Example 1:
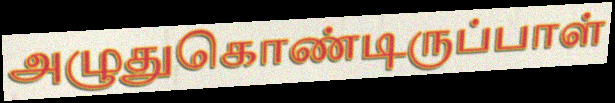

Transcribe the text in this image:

அழுதுகொண்டிருப்பாள்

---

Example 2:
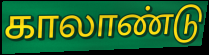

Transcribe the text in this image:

காலாண்டு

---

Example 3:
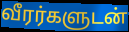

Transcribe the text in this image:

வீரர்களுடன்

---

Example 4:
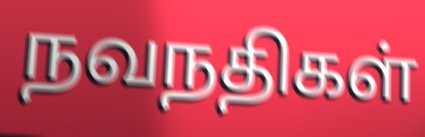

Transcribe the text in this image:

நவநதிகள்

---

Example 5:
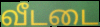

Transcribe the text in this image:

வீடடை